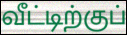
வீட்டிற்குப்